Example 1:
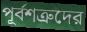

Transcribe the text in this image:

পূর্বশত্রুদের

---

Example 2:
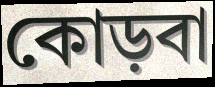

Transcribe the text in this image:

কোড়বা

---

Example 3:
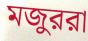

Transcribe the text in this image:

মজুররা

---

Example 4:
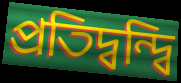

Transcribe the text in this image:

প্রতিদ্বন্দ্বি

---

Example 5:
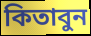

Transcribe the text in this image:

কিতাবুন